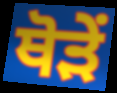
ਥੋੜੇਂ